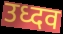
उध्दव